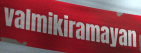
valmikiramayan